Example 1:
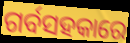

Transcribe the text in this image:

ଗର୍ବସହକାରେ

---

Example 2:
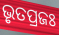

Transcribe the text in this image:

ଭୃତପ୍ରଜଃ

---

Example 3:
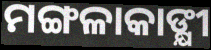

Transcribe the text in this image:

ମଙ୍ଗଳାକାଙ୍କ୍ଷୀ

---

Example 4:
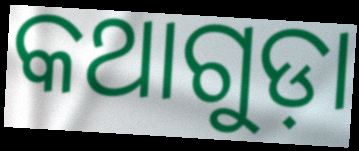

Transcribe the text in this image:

କଥାଗୁଡ଼ା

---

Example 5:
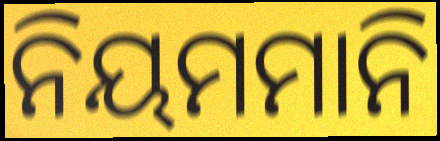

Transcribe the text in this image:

ନିୟମମାନି